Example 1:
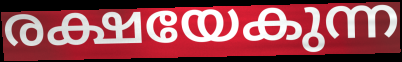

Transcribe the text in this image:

രക്ഷയേകുന്ന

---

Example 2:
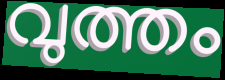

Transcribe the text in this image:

വുത്തം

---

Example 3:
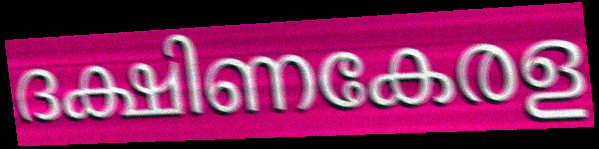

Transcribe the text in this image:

ദക്ഷിണകേരള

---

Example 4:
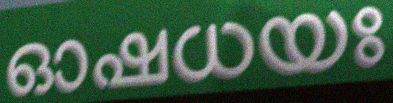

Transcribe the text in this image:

ഓഷധയഃ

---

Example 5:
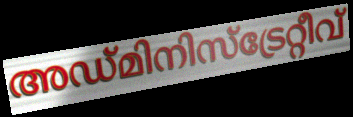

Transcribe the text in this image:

അഡ്മിനിസ്ട്രേറ്റീവ്